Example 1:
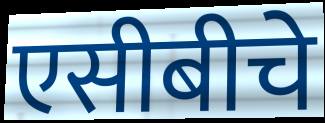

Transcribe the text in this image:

एसीबीचे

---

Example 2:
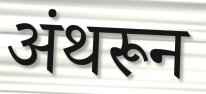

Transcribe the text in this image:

अंथरून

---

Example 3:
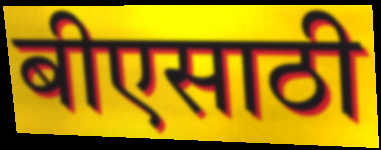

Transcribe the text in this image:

बीएसाठी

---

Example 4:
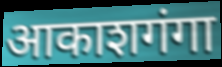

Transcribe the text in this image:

आकाशगंगा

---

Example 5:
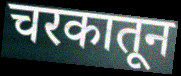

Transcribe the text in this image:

चरकातून